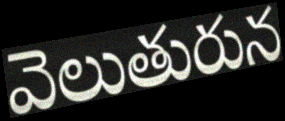
వెలుతురున